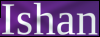
Ishan